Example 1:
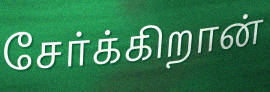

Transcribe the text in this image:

சேர்க்கிறான்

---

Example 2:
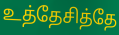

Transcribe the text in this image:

உத்தேசித்தே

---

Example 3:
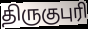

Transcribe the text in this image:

திருகுபுரி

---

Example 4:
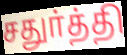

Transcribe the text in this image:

சதுர்த்தி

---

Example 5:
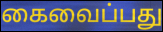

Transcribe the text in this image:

கைவைப்பது